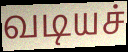
வடியச்